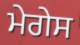
ਮੇਗੇਸ